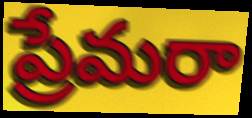
ప్రేమరా